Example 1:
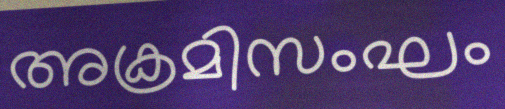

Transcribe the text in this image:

അക്രമിസംഘം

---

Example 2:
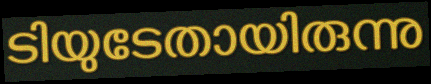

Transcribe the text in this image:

ടിയുടേതായിരുന്നു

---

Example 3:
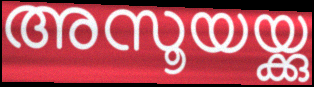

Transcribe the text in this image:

അസൂയയ്ക്കു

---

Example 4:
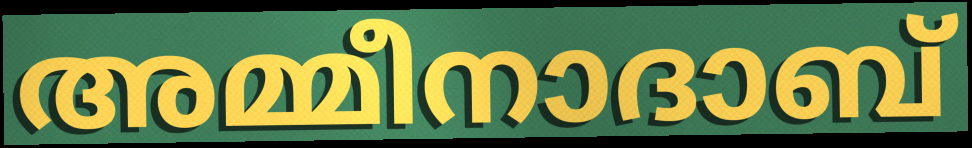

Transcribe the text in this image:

അമ്മീനാദാബ്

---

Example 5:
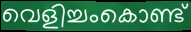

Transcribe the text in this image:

വെളിച്ചംകൊണ്ട്